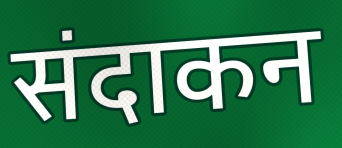
संदाकन